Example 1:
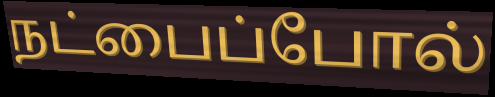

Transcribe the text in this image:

நட்பைப்போல்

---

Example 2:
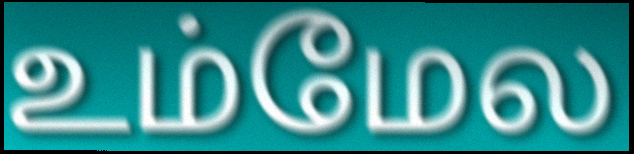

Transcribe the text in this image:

உம்மேல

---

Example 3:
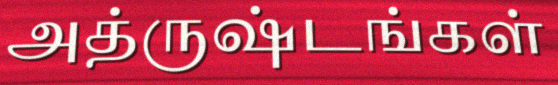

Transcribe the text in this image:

அத்ருஷ்டங்கள்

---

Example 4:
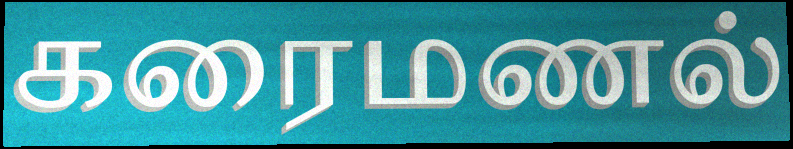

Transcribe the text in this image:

கரைமணல்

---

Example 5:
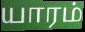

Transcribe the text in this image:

யாரம்